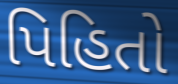
પિહિતો